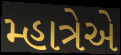
મ્હાત્રેએ